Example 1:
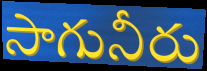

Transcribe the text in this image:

సాగునీరు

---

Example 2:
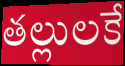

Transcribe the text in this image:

తల్లులకే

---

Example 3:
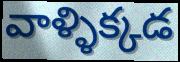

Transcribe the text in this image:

వాళ్ళిక్కడ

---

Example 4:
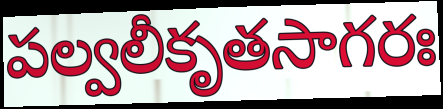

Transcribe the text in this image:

పల్వలీకృతసాగరః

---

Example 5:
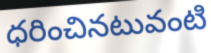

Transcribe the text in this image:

ధరించినటువంటి